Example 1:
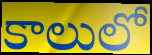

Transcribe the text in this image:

కాలులో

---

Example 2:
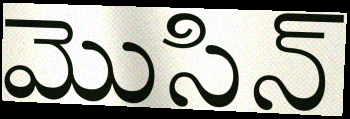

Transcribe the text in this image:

మొసిన్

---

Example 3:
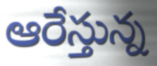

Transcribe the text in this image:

ఆరేస్తున్న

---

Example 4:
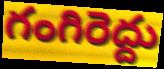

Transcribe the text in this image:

గంగిరెద్దు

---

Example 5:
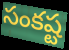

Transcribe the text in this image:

సంకష్ట